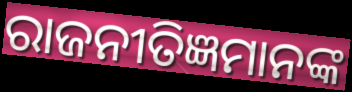
ରାଜନୀତିଜ୍ଞମାନଙ୍କ